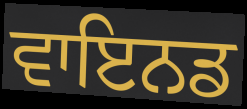
ਵਾਇਨਡ